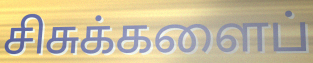
சிசுக்களைப்